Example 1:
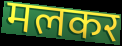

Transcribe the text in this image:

मलकर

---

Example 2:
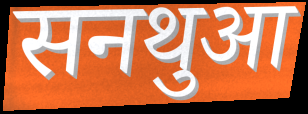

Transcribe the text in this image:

सनथुआ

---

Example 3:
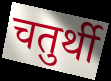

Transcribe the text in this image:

चतुर्थी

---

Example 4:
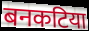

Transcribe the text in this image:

बनकटिया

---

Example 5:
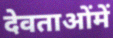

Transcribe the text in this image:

देवताओंमें